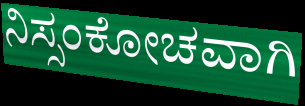
ನಿಸ್ಸಂಕೋಚವಾಗಿ